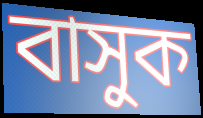
বাসুক